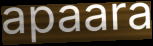
apaara